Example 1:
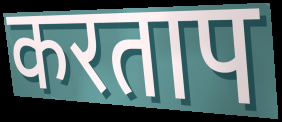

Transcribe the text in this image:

करताप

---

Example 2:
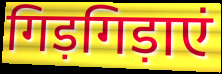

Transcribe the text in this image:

गिड़गिड़ाएं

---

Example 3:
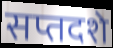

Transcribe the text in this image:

सप्तदशे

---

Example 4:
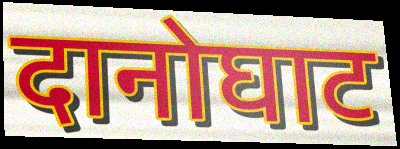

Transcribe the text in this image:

दानोघाट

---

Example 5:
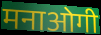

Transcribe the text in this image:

मनाओगी